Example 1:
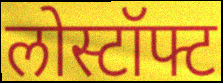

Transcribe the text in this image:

लोस्टॉफ्ट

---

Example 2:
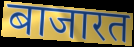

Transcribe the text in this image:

बाजारत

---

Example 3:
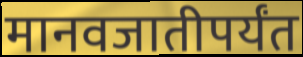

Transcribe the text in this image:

मानवजातीपर्यंत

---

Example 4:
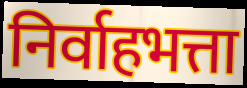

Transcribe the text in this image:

निर्वाहभत्ता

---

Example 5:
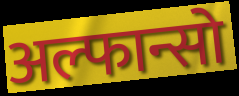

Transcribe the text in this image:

अल्फान्सो